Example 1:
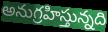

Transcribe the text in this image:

అనుగ్రహిస్తున్నది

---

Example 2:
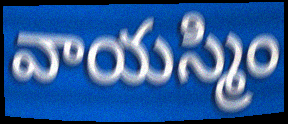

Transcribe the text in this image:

వాయస్మిం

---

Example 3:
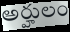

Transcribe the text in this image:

అర్హులం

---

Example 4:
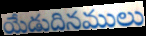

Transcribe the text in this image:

యేడుదినములు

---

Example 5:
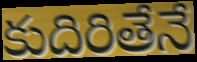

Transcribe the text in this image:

కుదిరితేనే